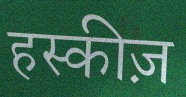
हस्कीज़